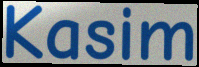
Kasim